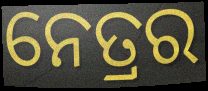
ନେତ୍ରର